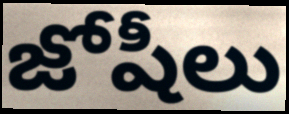
జోషీలు